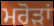
ਮਰੋੜਾਂ